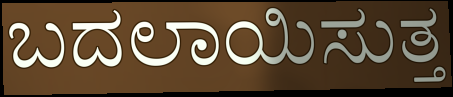
ಬದಲಾಯಿಸುತ್ತ